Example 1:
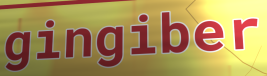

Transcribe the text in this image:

gingiber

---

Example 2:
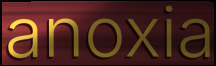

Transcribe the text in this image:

anoxia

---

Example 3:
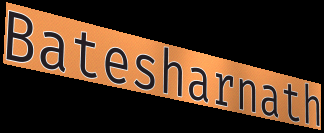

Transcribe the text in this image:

Batesharnath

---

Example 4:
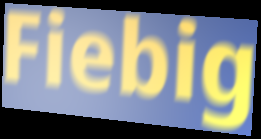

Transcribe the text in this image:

Fiebig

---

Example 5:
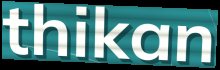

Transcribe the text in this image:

thikan